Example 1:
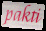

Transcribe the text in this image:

pakti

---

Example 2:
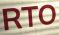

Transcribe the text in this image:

RTO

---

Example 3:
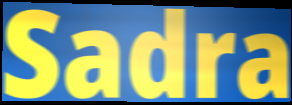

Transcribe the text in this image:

Sadra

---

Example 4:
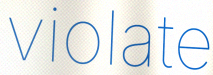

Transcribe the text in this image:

violate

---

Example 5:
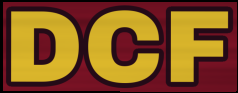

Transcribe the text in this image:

DCF